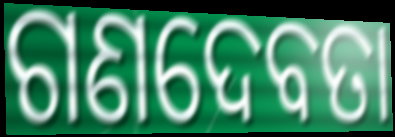
ଗଣଦେବତା